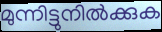
മുന്നിട്ടുനിൽക്കുക